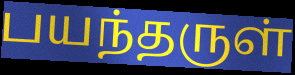
பயந்தருள்